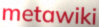
metawiki